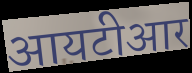
आयटीआर